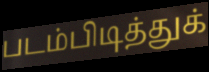
படம்பிடித்துக்